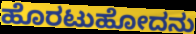
ಹೊರಟುಹೋದನು